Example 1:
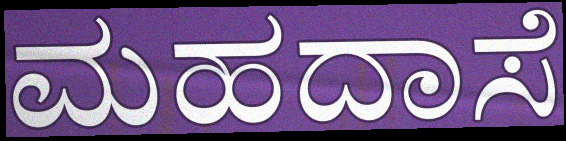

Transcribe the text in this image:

ಮಹದಾಸೆ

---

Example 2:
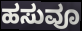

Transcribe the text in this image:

ಹಸುವೂ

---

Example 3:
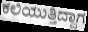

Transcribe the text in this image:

ಕಲಿಯುತ್ತಿದ್ದಾಗ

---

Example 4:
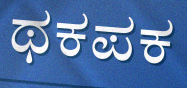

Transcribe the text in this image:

ಥಕಪಕ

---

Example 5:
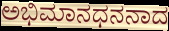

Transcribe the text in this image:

ಅಭಿಮಾನಧನನಾದ